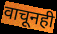
वाचूनही